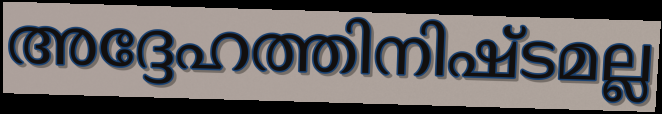
അദ്ദേഹത്തിനിഷ്ടമല്ല